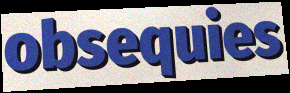
obsequies